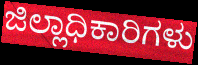
ಜಿಲ್ಲಾಧಿಕಾರಿಗಳು